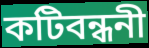
কটিবন্ধনী